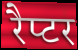
रैप्टर